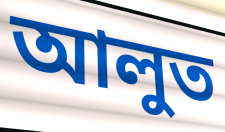
আলুত